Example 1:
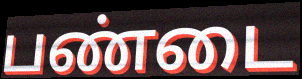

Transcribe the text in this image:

பண்டை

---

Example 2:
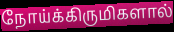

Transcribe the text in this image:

நோய்க்கிருமிகளால்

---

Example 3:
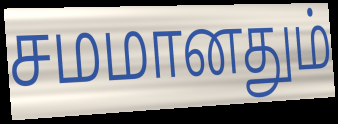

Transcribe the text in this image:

சமமானதும்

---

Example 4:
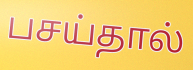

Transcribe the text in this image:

பசய்தால்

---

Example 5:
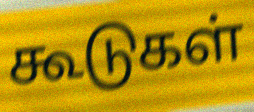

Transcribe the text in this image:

கூடுகள்